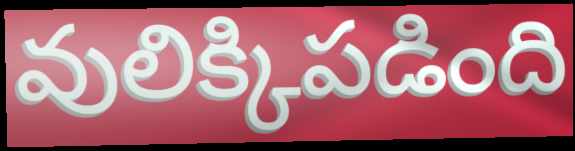
వులిక్కిపడింది